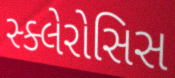
સ્ક્લેરોસિસ